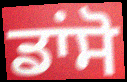
ਡਾਂਸੋ